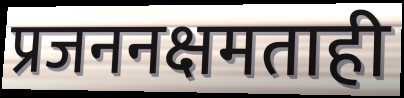
प्रजननक्षमताही